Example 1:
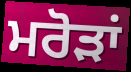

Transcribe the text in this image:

ਮਰੋੜਾਂ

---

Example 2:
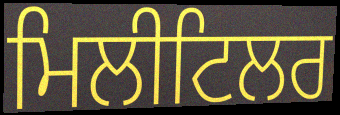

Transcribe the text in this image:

ਮਿਲੀਟਿਲਰ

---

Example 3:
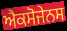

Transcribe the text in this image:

ਐਕਸੋਜੇਨਸ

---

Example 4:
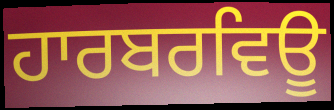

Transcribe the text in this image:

ਹਾਰਬਰਵਿਊ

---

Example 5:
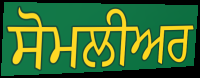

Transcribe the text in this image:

ਸੋਮਲੀਅਰ